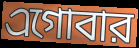
এগোবার